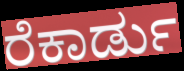
ರೆಕಾರ್ಡು